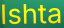
Ishta